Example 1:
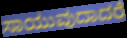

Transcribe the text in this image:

ಸಾಯುವುದಾದರೆ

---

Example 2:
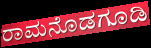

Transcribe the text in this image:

ರಾಮನೊಡಗೂಡಿ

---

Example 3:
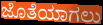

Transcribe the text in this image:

ಜೊತೆಯಾಗಲು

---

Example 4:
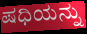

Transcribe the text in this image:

ಷಧಿಯನ್ನು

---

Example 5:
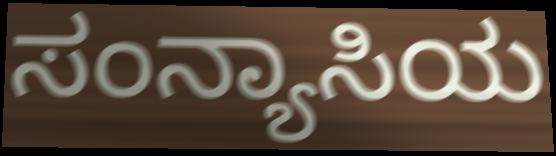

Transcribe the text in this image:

ಸಂನ್ಯಾಸಿಯ